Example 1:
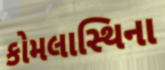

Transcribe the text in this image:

કોમલાસ્થિના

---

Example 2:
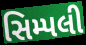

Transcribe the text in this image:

સિમ્પલી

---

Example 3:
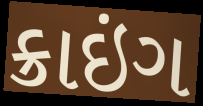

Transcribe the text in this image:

ક્રાઇંગ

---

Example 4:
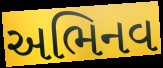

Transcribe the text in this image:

અભિનવ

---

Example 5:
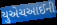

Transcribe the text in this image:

યુએચઆઈની